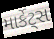
માર્કેટ્સ